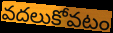
వదలుకోవటం